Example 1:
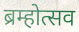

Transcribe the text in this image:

ब्रम्होत्सव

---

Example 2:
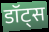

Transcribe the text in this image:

डॉट्स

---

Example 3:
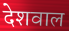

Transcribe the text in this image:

देशवाल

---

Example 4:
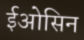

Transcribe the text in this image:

ईओसिन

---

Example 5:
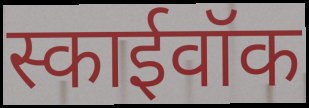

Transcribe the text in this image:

स्काईवॉक